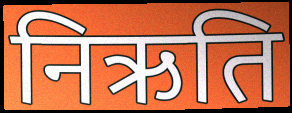
निऋति